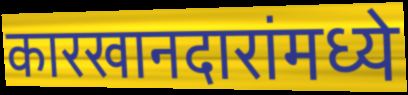
कारखानदारांमध्ये